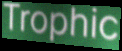
Trophic